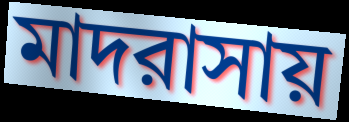
মাদরাসায়